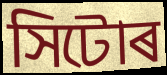
সিটোৰ